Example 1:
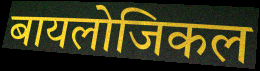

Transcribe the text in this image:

बायलोजिकल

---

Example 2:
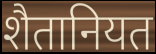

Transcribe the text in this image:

शैतानियत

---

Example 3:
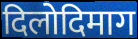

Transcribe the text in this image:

दिलोदिमाग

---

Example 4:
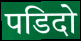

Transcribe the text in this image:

पडिदो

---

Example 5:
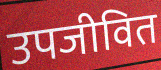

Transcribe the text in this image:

उपजीवित